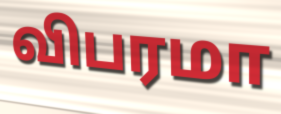
விபரமா